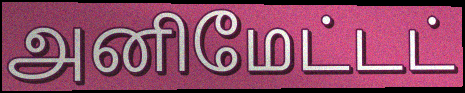
அனிமேட்டட்